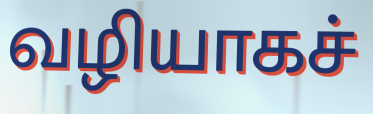
வழியாகச்